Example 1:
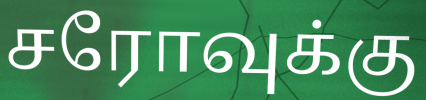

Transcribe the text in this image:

சரோவுக்கு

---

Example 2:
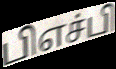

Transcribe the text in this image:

பிஎச்பி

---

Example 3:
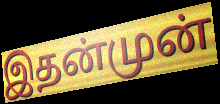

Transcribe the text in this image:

இதன்முன்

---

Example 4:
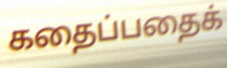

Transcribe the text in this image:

கதைப்பதைக்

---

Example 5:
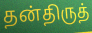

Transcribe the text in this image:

தன்திருத்